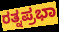
ರತ್ನಪ್ರಭಾ